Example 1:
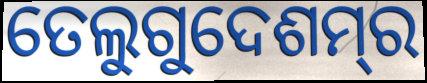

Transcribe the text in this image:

ତେଲୁଗୁଦେଶମ୍‌ର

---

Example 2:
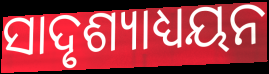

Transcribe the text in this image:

ସାଦୃଶ୍ୟାଧ୍ୟୟନ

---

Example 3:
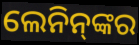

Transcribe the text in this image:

ଲେନିନ୍‌ଙ୍କର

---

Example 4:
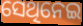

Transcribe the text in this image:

ସେଥିନେଇ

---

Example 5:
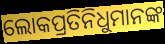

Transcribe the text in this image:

ଲୋକପ୍ରତିନିଧୁମାନଙ୍କ